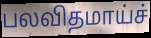
பலவிதமாய்ச்